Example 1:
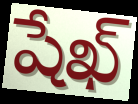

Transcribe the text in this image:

షేఖ్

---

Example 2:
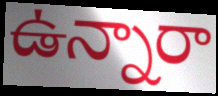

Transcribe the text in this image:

ఉన్నారా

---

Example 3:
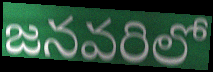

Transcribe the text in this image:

జనవరిలో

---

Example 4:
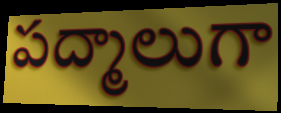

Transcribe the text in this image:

పద్మాలుగా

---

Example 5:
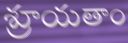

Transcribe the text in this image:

శ్రూయతాం